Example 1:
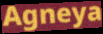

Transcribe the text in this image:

Agneya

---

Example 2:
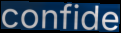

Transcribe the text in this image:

confide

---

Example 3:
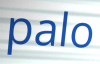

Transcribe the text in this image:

palo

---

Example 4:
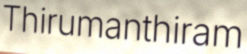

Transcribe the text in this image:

Thirumanthiram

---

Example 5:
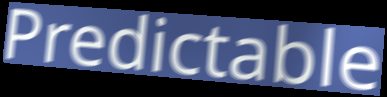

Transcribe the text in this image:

Predictable